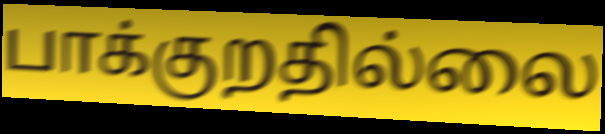
பாக்குறதில்லை